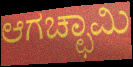
ಆಗಚ್ಛಾಮಿ